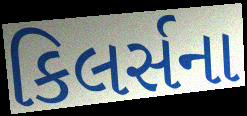
કિલર્સના